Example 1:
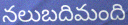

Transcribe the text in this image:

నలుబదిమంది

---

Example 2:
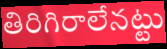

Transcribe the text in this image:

తిరిగిరాలేనట్టు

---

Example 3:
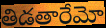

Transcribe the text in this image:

తిడతారేమో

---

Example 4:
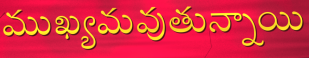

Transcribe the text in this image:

ముఖ్యమవుతున్నాయి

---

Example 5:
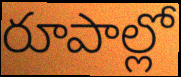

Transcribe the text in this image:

రూపాల్లో